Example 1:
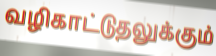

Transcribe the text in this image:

வழிகாட்டுதலுக்கும்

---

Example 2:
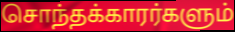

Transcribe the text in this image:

சொந்தக்காரர்களும்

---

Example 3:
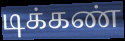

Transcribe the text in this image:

டிக்கண்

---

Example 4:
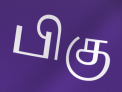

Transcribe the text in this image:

பிகு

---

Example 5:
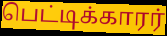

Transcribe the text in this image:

பெட்டிக்காரர்